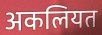
अकलियत